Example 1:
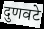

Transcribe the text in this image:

दुणवटे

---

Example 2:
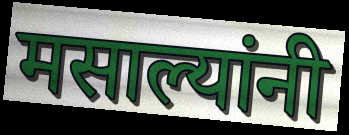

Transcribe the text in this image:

मसाल्यांनी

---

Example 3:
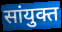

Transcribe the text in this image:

सांयुक्त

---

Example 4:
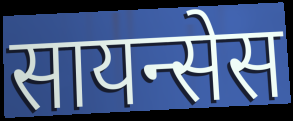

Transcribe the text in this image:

सायन्सेस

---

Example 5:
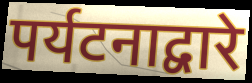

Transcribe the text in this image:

पर्यटनाद्वारे